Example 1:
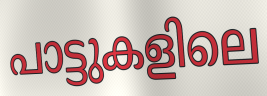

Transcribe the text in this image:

പാട്ടുകളിലെ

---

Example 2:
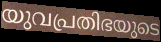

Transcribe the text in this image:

യുവപ്രതിഭയുടെ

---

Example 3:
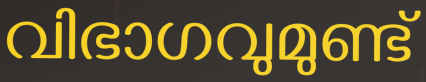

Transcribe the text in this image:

വിഭാഗവുമുണ്ട്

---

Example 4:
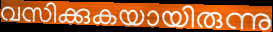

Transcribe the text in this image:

വസിക്കുകയായിരുന്നു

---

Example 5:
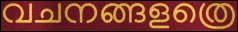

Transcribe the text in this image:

വചനങ്ങളത്രെ